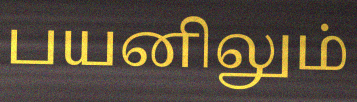
பயனிலும்